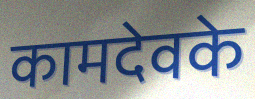
कामदेवके